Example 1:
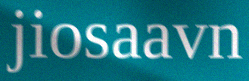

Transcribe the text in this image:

jiosaavn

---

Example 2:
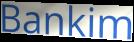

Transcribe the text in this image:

Bankim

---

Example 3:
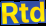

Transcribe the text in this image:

Rtd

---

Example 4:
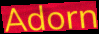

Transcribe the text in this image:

Adorn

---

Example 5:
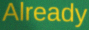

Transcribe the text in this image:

Already